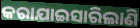
କରାଯାଇସାରିଲାଣି